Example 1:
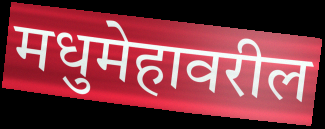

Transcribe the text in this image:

मधुमेहावरील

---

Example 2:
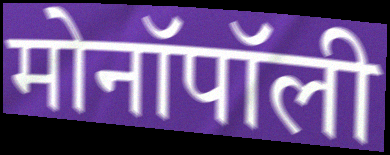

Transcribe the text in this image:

मोनॉपॉली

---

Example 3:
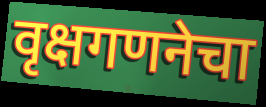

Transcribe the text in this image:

वृक्षगणनेचा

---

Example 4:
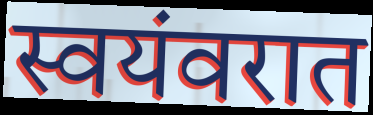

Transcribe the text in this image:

स्वयंवरात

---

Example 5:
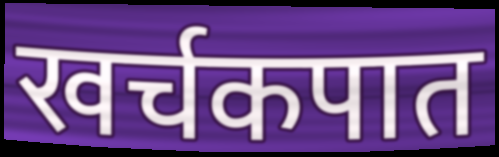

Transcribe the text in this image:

खर्चकपात